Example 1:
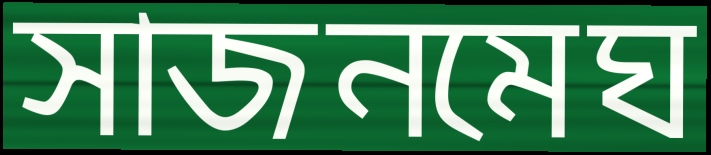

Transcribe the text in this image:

সাজনমেঘ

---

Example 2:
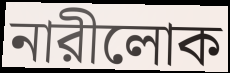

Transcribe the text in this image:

নারীলোক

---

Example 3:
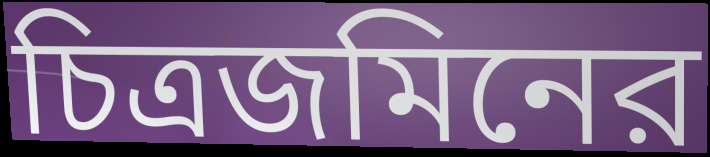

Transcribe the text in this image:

চিত্রজমিনের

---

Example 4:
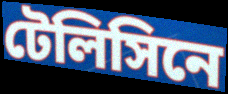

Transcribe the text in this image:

টেলিসিনে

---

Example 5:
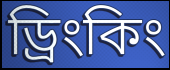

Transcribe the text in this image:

ড্রিংকিং